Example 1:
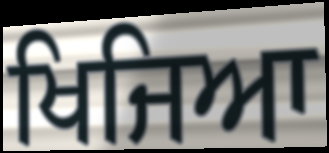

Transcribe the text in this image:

ਖਿਜਿਆ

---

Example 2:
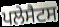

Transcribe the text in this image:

ਪਲੇਸੈਟਸ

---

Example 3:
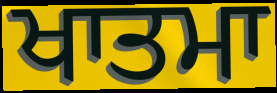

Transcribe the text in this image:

ਖਾਤਮਾ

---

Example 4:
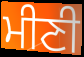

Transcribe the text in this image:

ਮੀਣੀ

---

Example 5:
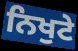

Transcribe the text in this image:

ਨਿਖੁਟੇ